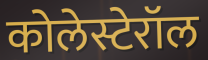
कोलेस्टेरॉल